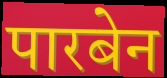
पारबेन